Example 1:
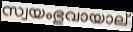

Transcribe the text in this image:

സ്വയംഭുവായാല്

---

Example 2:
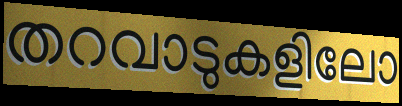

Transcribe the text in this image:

തറവാടുകളിലോ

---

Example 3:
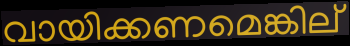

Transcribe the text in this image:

വായിക്കണമെങ്കില്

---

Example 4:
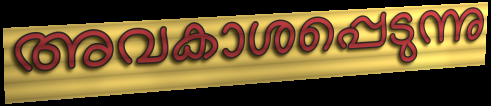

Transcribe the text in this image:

അവകാശപ്പെടുന്നു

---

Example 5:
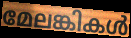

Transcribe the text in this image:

മേലങ്കികൾ